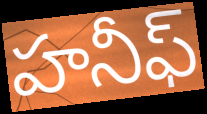
హనీఫ్